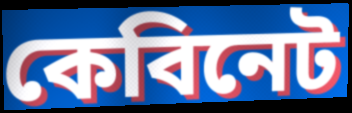
কেবিনেট